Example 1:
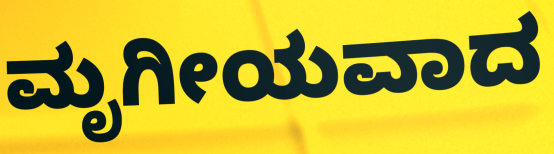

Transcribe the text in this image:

ಮೃಗೀಯವಾದ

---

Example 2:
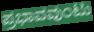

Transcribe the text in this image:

ಪ್ರಭಾವವುಂಟು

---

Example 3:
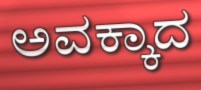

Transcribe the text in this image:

ಅವಕ್ಕಾದ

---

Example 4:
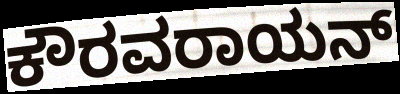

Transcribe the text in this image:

ಕೌರವರಾಯನ್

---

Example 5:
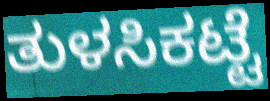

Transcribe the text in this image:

ತುಳಸಿಕಟ್ಟೆ